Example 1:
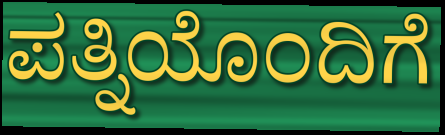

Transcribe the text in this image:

ಪತ್ನಿಯೊಂದಿಗೆ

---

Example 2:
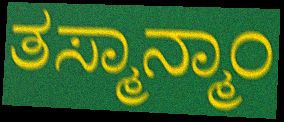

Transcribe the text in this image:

ತಸ್ಮಾನ್ಮಾಂ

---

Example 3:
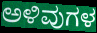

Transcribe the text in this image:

ಅಳಿವುಗಳ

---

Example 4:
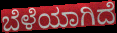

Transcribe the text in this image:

ಬೆಳೆಯಾಗಿದೆ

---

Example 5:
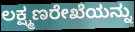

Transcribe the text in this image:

ಲಕ್ಷ್ಮಣರೇಖೆಯನ್ನು